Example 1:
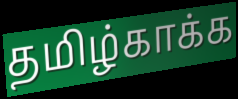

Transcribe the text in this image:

தமிழ்காக்க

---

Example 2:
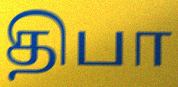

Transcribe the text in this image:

திபா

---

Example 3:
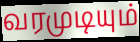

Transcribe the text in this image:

வரமுடியும்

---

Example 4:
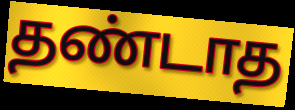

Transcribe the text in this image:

தண்டாத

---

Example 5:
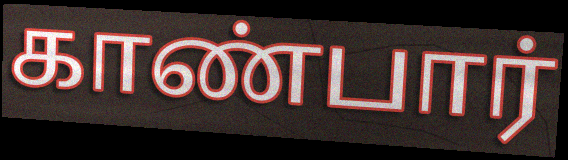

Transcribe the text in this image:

காண்பார்